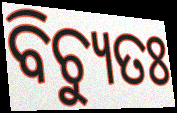
ବିଚ୍ୟୁତଃ